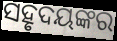
ସହୃଦୟଙ୍କର